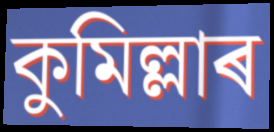
কুমিল্লাৰ